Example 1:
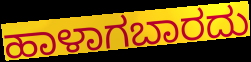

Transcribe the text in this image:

ಹಾಳಾಗಬಾರದು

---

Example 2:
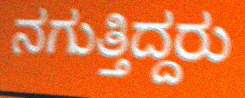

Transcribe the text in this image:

ನಗುತ್ತಿದ್ದರು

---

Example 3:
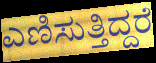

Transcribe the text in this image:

ಎಣಿಸುತ್ತಿದ್ದರೆ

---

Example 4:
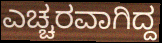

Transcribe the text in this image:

ಎಚ್ಚರವಾಗಿದ್ದ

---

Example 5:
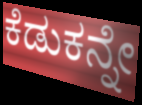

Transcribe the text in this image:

ಕೆಡುಕನ್ನೇ